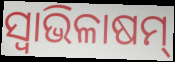
ସ୍ବାଭିଳାଷମ୍